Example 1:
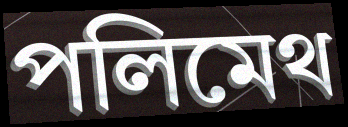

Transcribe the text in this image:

পলিমেথ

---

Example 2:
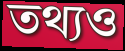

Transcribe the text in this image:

তথ্যও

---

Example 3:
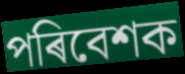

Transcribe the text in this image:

পৰিবেশক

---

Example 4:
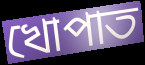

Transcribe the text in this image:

খোপাত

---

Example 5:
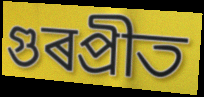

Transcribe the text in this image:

গুৰপ্ৰীত